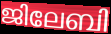
ജിലേബി